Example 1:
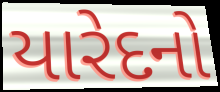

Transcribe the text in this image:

યારેદનો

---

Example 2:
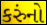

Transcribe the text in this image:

કરુંનો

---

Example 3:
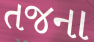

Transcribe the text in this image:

તજના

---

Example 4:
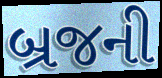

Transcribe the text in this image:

બ્રજની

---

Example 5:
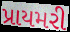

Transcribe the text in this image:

પ્રાયમરી